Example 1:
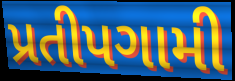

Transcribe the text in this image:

પ્રતીપગામી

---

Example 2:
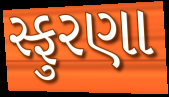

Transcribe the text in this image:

સ્ફુરણા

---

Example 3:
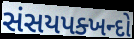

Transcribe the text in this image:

સંસયપક્ખન્દો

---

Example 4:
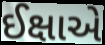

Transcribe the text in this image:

ઈક્ષાએ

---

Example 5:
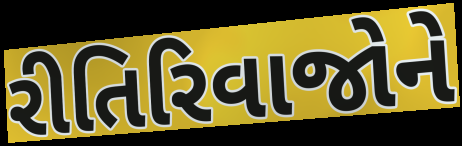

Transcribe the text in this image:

રીતિરિવાજોને